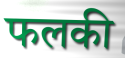
फलकी